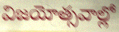
విజయోత్సవాల్లో